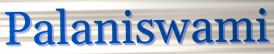
Palaniswami